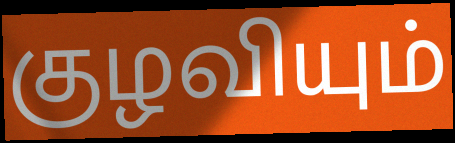
குழவியும்